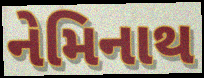
નેમિનાથ